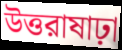
উত্তরাষাঢ়া